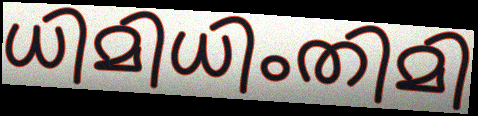
ധിമിധിംതിമി